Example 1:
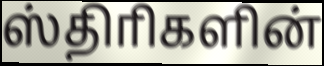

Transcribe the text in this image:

ஸ்திரிகளின்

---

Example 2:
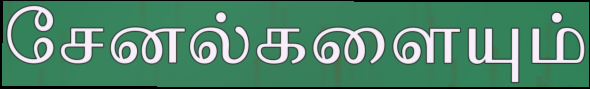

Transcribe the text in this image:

சேனல்களையும்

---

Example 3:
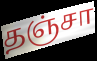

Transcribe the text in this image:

தஞ்சா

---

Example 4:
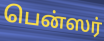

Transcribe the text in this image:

பென்ஸர்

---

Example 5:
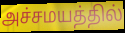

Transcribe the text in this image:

அச்சமயத்தில்